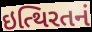
ઇત્થિરતનં